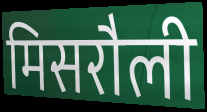
मिसरौली